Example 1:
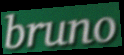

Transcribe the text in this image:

bruno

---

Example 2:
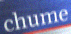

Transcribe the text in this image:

chume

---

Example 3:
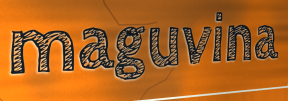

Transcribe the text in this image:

maguvina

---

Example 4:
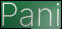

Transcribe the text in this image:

Pani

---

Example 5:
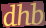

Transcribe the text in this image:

dhb